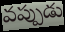
వప్పుడు